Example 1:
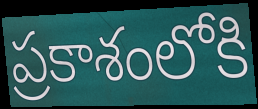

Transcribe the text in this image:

ప్రకాశంలోకి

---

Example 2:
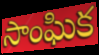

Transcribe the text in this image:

సాంఘిక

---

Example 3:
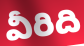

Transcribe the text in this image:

వీరిది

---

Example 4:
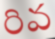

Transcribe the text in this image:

రివ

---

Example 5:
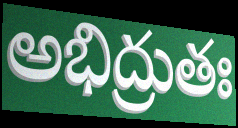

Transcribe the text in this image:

అభిద్రుతః